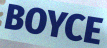
BOYCE